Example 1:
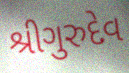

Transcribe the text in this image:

શ્રીગુરુદેવ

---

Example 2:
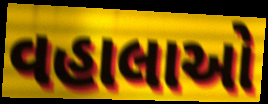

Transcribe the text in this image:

વહાલાઓ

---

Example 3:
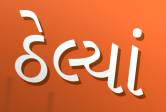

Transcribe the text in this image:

ઠેલ્યાં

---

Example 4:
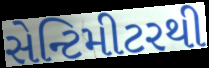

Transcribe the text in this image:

સેન્ટિમીટરથી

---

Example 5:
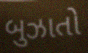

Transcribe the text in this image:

બુઝાતો